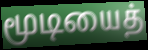
மூடியைத்